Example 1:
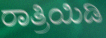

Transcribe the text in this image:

ರಾತ್ರಿಯಿಡಿ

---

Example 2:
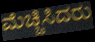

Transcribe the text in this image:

ಮೆಚ್ಚಿಸಿದರು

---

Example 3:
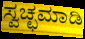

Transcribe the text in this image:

ಸ್ವಚ್ಛಮಾಡಿ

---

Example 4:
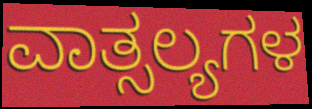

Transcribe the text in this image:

ವಾತ್ಸಲ್ಯಗಳ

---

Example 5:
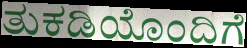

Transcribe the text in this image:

ತುಕಡಿಯೊಂದಿಗೆ